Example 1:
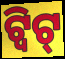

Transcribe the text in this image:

ଟ୍ୱିଟ୍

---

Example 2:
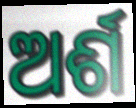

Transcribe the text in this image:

ଅର୍ଶ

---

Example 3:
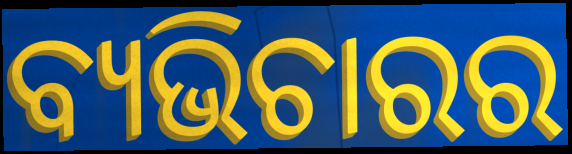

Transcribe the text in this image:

ବ୍ୟଭିଚାରର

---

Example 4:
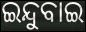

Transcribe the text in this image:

ଇନ୍ଦୁବାଇ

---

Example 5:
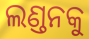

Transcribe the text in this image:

ଲଣ୍ଡନକୁ